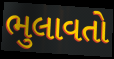
ભુલાવતો